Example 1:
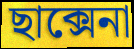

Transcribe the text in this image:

ছাক্সেনা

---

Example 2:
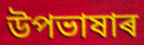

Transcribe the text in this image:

উপভাষাৰ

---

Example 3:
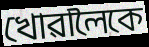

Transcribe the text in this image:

খোৱালৈকে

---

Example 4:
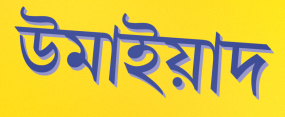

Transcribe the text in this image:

উমাইয়াদ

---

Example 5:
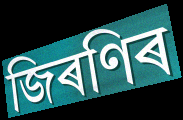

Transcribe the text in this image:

জিৰণিৰ